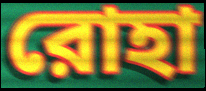
রোহা